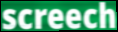
screech